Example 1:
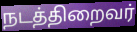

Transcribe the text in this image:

நடத்திறைவர்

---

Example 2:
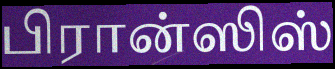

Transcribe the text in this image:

பிரான்ஸிஸ்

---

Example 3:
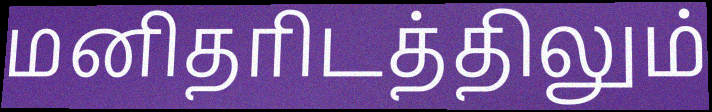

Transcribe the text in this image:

மனிதரிடத்திலும்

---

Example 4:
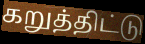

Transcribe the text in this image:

கறுத்திட்டு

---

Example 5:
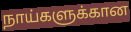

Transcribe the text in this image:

நாய்களுக்கான